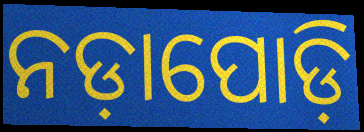
ନଡ଼ାପୋଡ଼ି